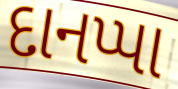
દાનપ્પા